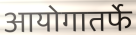
आयोगातर्फे